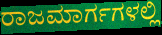
ರಾಜಮಾರ್ಗಗಳಲ್ಲಿ